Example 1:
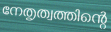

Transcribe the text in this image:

നേതൃത്വത്തിന്റെ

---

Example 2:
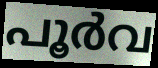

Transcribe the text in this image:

പൂർവ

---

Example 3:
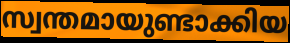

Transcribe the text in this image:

സ്വന്തമായുണ്ടാക്കിയ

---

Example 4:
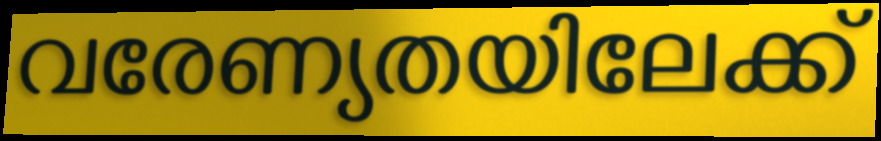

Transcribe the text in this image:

വരേണ്യതയിലേക്ക്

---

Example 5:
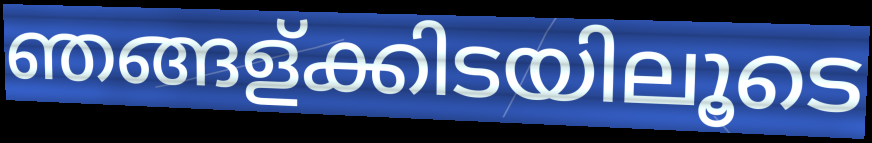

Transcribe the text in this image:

ഞങ്ങള്ക്കിടയിലൂടെ